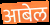
आबेल